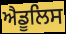
ਐਡੂਲਿਸ